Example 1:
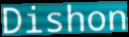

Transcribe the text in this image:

Dishon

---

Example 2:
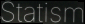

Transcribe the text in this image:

Statism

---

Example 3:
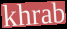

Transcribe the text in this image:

khrab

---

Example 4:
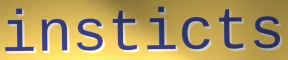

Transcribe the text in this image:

insticts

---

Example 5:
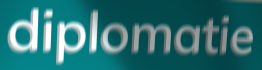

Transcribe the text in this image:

diplomatie